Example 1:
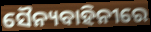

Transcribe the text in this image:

ସୈନ୍ୟବାହିନୀରେ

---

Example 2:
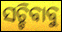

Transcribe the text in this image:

ସଚ୍ଚିବାବୁ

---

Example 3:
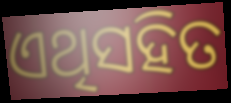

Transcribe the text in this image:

ଏଥିସହିତ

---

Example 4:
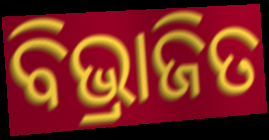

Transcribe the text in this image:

ବିଭ୍ରାଜିତ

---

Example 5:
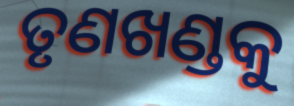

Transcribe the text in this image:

ତୃଣଖଣ୍ଡକୁ